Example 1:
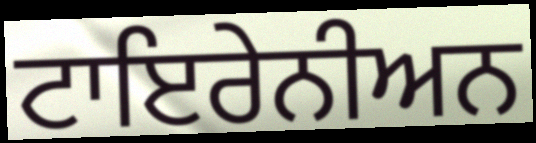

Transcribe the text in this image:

ਟਾਇਰੇਨੀਅਨ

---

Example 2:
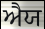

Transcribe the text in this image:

ਐਯ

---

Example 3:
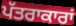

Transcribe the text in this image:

ਪੱਤਰਾਕਾਰਾਂ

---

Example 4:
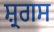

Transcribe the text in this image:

ਸ਼੍ਰਗਸ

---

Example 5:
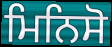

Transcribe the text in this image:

ਮਿਨਿਸੋ